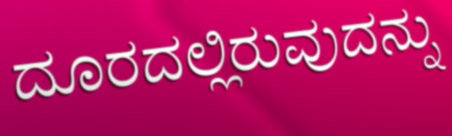
ದೂರದಲ್ಲಿರುವುದನ್ನು